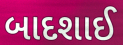
બાદશાઈ